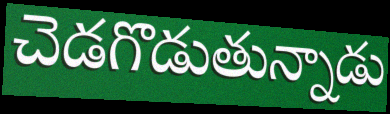
చెడగొడుతున్నాడు